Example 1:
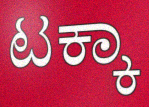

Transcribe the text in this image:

ಟಕ್ಕಾ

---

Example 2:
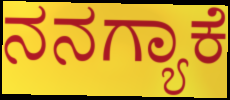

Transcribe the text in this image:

ನನಗ್ಯಾಕೆ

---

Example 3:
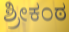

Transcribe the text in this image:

ಶ್ರೀಕಂಠ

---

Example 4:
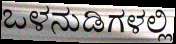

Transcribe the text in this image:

ಒಳನುಡಿಗಳಲ್ಲಿ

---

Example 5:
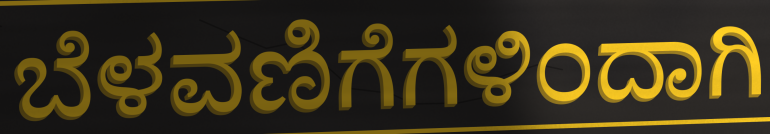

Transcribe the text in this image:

ಬೆಳವಣಿಗೆಗಳಿಂದಾಗಿ